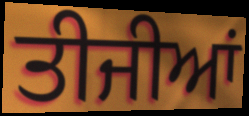
ਤੀਜੀਆਂ